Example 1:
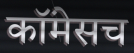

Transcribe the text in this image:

कॉंमेसच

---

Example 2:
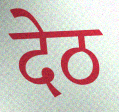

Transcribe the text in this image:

देठ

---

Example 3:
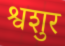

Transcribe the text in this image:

श्वशुर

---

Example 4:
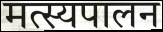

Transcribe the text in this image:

मत्स्यपालन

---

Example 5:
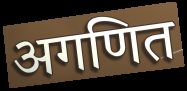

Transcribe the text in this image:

अगणित